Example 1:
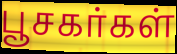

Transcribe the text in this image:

பூசகர்கள்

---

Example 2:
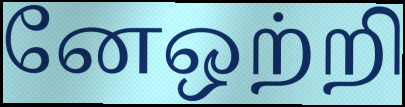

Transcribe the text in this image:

னேஒற்றி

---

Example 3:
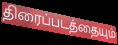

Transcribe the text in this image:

திரைப்படத்தையும்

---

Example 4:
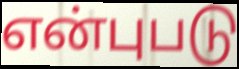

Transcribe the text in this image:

என்புபடு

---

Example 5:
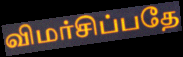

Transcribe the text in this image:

விமர்சிப்பதே